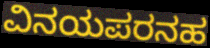
ವಿನಯಪರನಹ